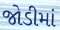
જોડીમાં